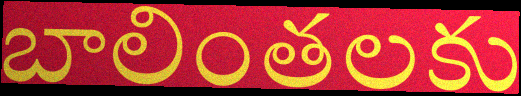
బాలింతలకు